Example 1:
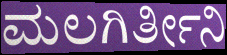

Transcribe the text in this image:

ಮಲಗಿರ್ತೀನಿ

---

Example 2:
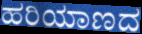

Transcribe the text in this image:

ಹರಿಯಾಣದ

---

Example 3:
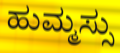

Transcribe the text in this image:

ಹುಮ್ಮಸ್ಸು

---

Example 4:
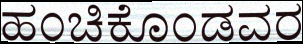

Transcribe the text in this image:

ಹಂಚಿಕೊಂಡವರ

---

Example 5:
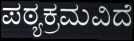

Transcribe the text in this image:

ಪಠ್ಯಕ್ರಮವಿದೆ